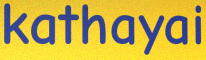
kathayai